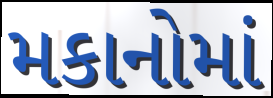
મકાનોમાં